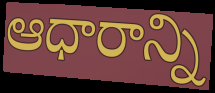
ఆధారాన్ని